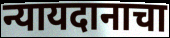
न्यायदानाचा